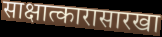
साक्षात्कारासारखा